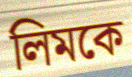
লিমকে